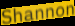
Shannon